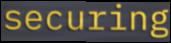
securing